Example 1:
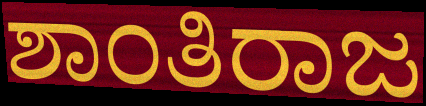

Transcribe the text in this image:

ಶಾಂತಿರಾಜ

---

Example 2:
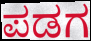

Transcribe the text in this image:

ಪಡಗ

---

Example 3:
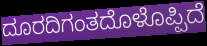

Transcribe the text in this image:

ದೂರದಿಗಂತದೊಳೊಪ್ಪಿದೆ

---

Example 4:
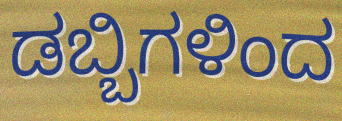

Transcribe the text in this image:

ಡಬ್ಬಿಗಳಿಂದ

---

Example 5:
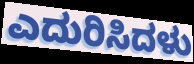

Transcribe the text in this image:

ಎದುರಿಸಿದಳು